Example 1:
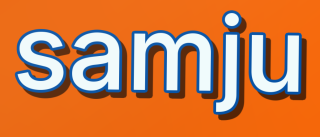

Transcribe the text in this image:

samju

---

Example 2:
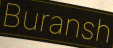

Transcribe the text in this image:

Buransh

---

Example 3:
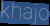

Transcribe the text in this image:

khajo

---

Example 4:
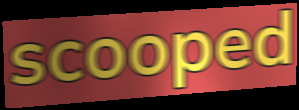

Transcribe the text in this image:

scooped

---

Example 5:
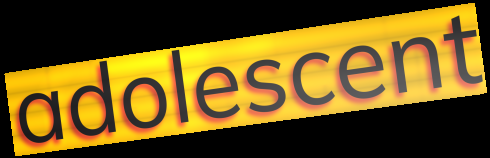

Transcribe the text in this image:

adolescent